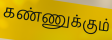
கண்ணுக்கும்